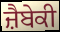
ਜ਼ੈਬੇਕੀ